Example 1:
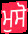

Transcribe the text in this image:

ਮੁਸੋ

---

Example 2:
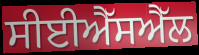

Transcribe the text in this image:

ਸੀਈਐੱਸਐੱਲ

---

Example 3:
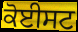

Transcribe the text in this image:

ਕੋਈਸਟ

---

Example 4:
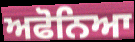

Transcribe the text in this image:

ਅਫੋਨਿਆ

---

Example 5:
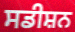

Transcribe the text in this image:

ਸਡੀਸ਼ਨ